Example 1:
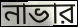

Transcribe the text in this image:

নাভার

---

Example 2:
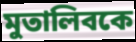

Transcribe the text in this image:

মুতালিবকে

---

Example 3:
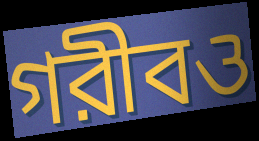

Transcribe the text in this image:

গরীবও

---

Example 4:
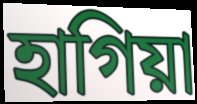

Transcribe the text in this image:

হাগিয়া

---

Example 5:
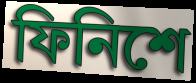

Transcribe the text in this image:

ফিনিশে